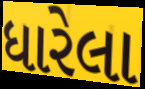
ધારેલા